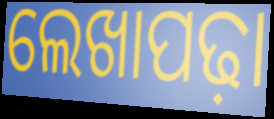
ଲେଖାପଢ଼ା